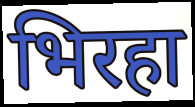
भिरहा